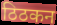
ठिठकन